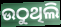
ଉଠୁଥିଲି